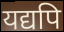
यद्यपि